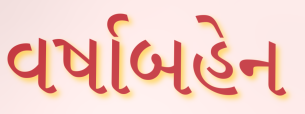
વર્ષાબહેન